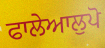
ਫਾਲੇਆਲੁਪੋ